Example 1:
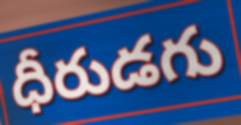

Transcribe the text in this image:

ధీరుడగు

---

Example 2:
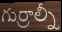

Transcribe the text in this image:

గుర్రాల్నీ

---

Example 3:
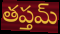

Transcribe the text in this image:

తప్తమ్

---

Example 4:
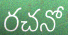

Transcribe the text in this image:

రచనో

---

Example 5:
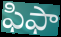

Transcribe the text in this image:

ఫిఫా